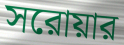
সরোয়ার